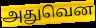
அதுவென